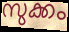
സുക്കം